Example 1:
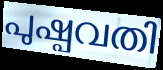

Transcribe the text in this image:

പുഷ്പവതി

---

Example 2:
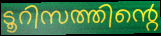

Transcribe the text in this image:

ടൂറിസത്തിന്റെ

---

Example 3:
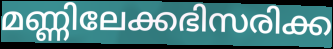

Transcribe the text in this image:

മണ്ണിലേക്കഭിസരിക്ക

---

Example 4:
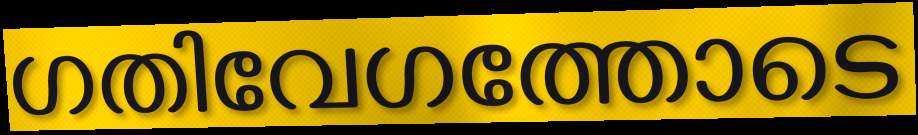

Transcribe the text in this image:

ഗതിവേഗത്തോടെ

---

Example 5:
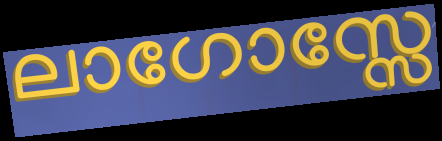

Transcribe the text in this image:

ലാഗോസ്സേ